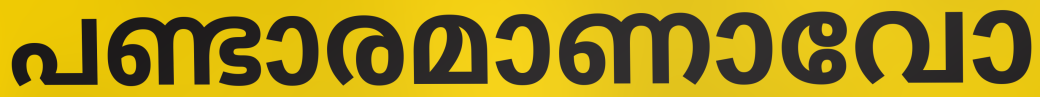
പണ്ടാരമാണാവോ